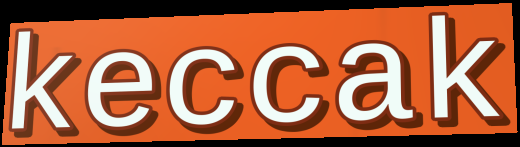
keccak